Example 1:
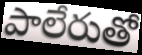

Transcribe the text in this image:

పాలేరుతో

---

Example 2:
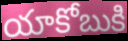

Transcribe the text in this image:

యాకోబుకి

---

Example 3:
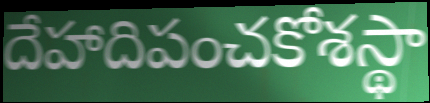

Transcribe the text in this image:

దేహాదిపంచకోశస్థా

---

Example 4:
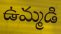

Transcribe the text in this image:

ఉమ్మడి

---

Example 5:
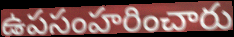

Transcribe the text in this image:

ఉపసంహరించారు